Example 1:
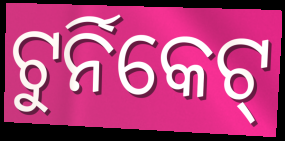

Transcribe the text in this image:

ଟୁର୍ନିକେଟ୍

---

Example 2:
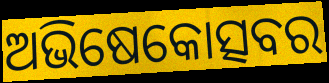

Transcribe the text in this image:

ଅଭିଷେକୋତ୍ସବର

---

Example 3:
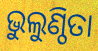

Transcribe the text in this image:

ଭୁଲୁଣ୍ଠିତା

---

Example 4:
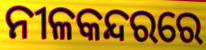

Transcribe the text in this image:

ନୀଳକନ୍ଦରରେ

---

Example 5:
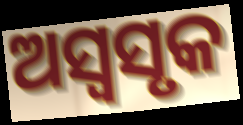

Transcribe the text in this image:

ଅସ୍ୱସୃକ